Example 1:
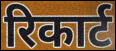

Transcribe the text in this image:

रिकार्ट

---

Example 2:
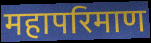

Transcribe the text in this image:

महापरिमाण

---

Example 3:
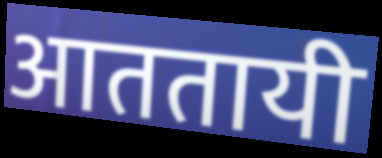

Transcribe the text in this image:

आततायी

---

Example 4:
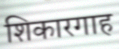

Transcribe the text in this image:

शिकारगाह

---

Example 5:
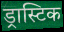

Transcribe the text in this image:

ड्रास्टिक